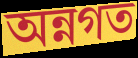
অন্নগত